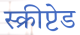
स्क्रीप्टेड